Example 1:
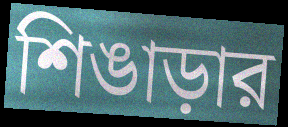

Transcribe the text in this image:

শিঙাড়ার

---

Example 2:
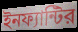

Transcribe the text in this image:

ইনফ্যান্টির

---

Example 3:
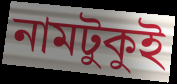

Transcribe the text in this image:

নামটুকুই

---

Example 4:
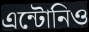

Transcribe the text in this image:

এন্টোনিও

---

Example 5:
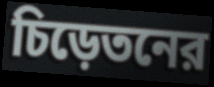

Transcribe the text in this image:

চিড়েতনের